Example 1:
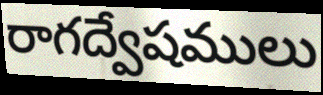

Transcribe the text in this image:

రాగద్వేషములు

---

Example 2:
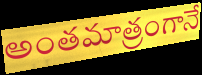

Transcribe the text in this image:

అంతమాత్రంగానే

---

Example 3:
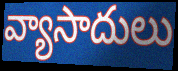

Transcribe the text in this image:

వ్యాసాదులు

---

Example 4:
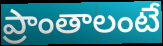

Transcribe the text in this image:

ప్రాంతాలంటే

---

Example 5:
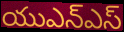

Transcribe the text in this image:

యుఎన్ఎస్